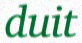
duit